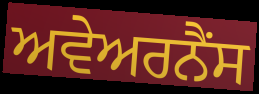
ਅਵੇਅਰਨੈਂਸ